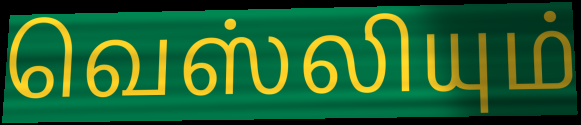
வெஸ்லியும்